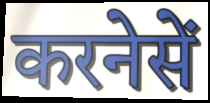
करनेसें